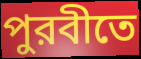
পুরবীতে